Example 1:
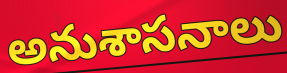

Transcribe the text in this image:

అనుశాసనాలు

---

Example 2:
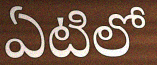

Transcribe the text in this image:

ఏటిలో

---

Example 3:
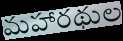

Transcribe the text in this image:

మహారథుల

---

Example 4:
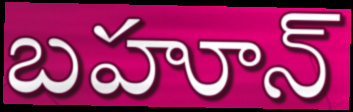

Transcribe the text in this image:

బహూన్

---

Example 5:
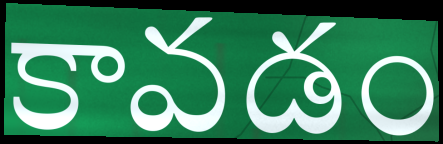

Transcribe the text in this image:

కావడం